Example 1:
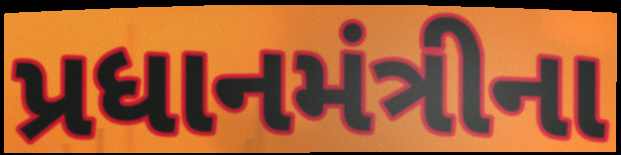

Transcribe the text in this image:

પ્રધાનમંત્રીના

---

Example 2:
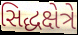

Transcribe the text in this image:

સિદ્ધક્ષેત્રે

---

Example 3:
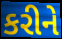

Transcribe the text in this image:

કરીને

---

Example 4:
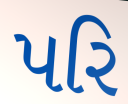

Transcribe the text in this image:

પરિ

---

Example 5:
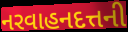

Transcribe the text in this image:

નરવાહનદત્તની